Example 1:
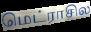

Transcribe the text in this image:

மெட்ராசில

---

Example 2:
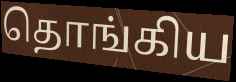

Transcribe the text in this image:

தொங்கிய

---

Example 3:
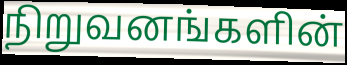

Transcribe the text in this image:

நிறுவனங்களின்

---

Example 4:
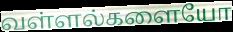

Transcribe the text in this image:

வள்ளல்களையோ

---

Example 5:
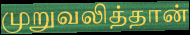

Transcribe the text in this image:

முறுவலித்தான்